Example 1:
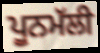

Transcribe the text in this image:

ਪੂਨਮੱਲੀ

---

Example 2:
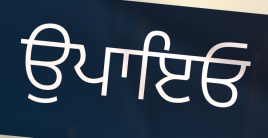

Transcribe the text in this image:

ਉਪਾਇਓ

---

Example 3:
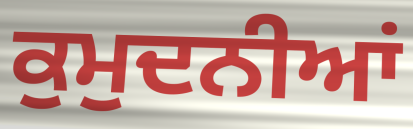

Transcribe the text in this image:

ਕੁਮੁਦਨੀਆਂ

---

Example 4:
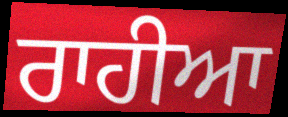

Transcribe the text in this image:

ਰਾਹੀਆ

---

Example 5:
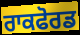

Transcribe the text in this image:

ਰਾਕਫੋਰਡ